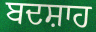
ਬਦਸ਼ਾਹ